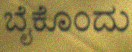
ಬೈಕೊಂದು